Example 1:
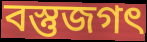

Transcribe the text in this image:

বস্তুজগৎ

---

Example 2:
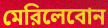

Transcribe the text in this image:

মেরিলেবোন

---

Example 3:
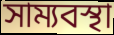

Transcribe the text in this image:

সাম্যবস্থা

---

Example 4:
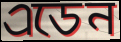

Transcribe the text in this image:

এডেন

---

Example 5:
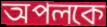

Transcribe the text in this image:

অপলকে